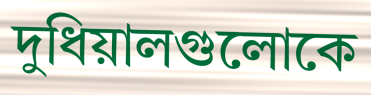
দুধিয়ালগুলোকে